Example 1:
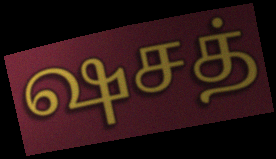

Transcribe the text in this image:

ஷசத்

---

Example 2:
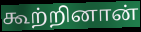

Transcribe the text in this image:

கூற்றினான்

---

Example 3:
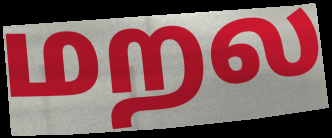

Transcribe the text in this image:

மறல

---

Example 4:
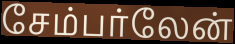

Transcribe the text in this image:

சேம்பர்லேன்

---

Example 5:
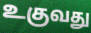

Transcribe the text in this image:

உகுவது